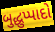
બુદ્ધુપ્પાદો